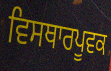
ਵਿਸਥਾਰਪੂਵਕ